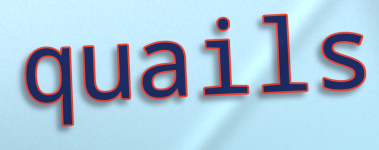
quails